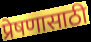
प्रेषणासाठी